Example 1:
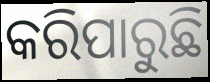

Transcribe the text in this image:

କରିପାରୁଛି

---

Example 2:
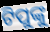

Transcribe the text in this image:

ଟିପୁଙ୍କୁ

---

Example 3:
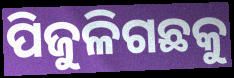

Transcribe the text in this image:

ପିଜୁଳିଗଛକୁ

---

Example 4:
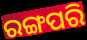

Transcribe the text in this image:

ରଙ୍ଗପରି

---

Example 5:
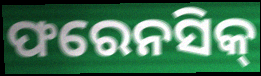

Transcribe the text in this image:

ଫରେନସିକ୍